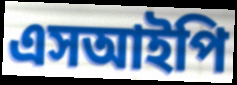
এসআইপি